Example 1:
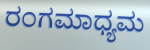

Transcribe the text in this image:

ರಂಗಮಾಧ್ಯಮ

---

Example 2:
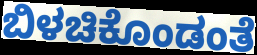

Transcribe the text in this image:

ಬಿಳಚಿಕೊಂಡಂತೆ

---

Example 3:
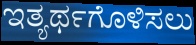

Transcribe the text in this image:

ಇತ್ಯರ್ಥಗೊಳಿಸಲು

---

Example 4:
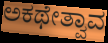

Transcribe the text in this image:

ಅಕಥೇತ್ವಾವ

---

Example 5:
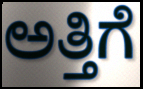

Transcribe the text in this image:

ಅತ್ತಿಗೆ